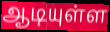
ஆடியுள்ள